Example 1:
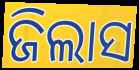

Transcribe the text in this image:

ଜିଲାସ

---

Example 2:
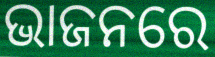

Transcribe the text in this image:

ଭାଜନରେ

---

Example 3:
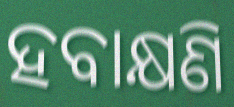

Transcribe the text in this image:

ହବାକ୍ଷଣି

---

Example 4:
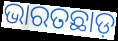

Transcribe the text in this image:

ଭାରତଛାଡ଼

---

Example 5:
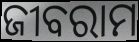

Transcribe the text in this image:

ଜୀବରାମ